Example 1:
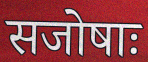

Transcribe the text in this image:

सजोषाः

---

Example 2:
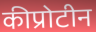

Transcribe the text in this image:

कीप्रोटीन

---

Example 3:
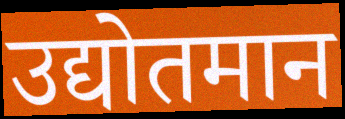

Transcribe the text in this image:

उद्योतमान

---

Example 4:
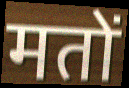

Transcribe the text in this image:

मतों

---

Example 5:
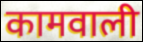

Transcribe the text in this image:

कामवाली